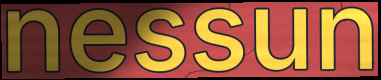
nessun